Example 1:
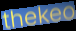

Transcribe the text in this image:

thekeo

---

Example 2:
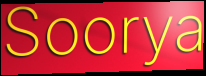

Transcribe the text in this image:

Soorya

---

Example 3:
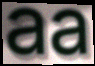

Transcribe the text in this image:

aa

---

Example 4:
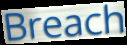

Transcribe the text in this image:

Breach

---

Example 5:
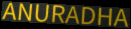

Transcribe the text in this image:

ANURADHA